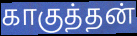
காகுத்தன்